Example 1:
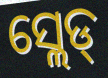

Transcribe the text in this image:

ସ୍ଲେଡ୍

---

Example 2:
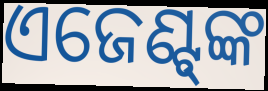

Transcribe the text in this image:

ଏଜେଣ୍ଟ୍‍ଙ୍କ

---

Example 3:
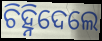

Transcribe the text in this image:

ଚିହ୍ନିଦେଲେ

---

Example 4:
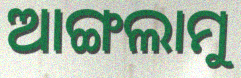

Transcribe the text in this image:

ଆଙ୍ଗଲାମୁ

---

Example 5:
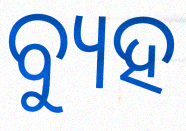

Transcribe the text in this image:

ବ୍ୟୁହ